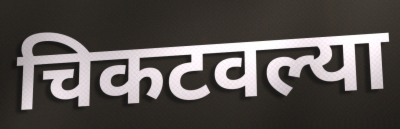
चिकटवल्या